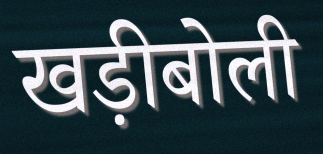
खड़ीबोली